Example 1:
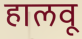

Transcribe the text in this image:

हालवू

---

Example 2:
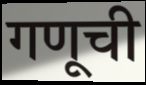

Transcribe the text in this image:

गणूची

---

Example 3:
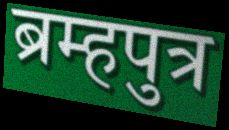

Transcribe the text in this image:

ब्रम्हपुत्र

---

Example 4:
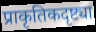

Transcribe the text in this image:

प्राकृतिकदृष्ट्या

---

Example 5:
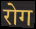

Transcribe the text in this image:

रोग